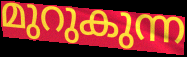
മുറുകുന്ന